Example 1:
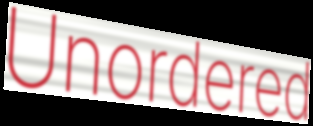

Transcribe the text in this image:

Unordered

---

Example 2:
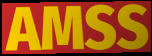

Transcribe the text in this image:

AMSS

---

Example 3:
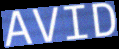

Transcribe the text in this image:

AVID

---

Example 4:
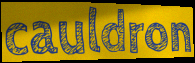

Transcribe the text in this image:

cauldron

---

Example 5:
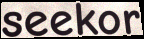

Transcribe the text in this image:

seekor